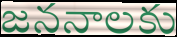
జననాలకు